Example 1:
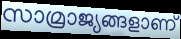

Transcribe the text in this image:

സാമ്രാജ്യങ്ങളാണ്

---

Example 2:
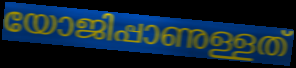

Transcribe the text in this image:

യോജിപ്പാണുള്ളത്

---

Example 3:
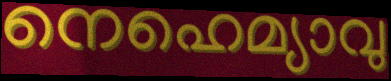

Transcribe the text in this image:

നെഹെമ്യാവു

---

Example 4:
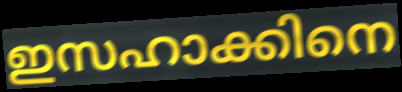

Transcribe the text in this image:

ഇസഹാക്കിനെ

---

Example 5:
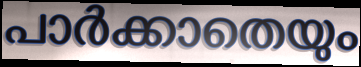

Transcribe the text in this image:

പാർക്കാതെയും